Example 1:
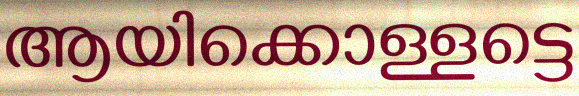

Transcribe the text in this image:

ആയിക്കൊള്ളട്ടെ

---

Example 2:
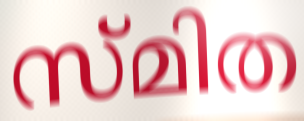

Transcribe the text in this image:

സ്മിത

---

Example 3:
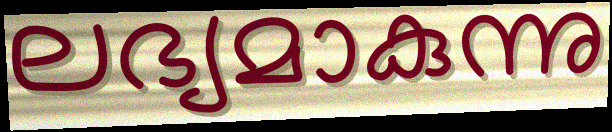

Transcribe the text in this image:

ലഭ്യമാകുന്നു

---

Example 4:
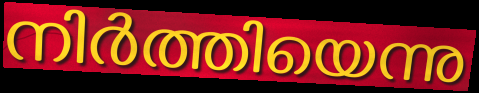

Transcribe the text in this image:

നിർത്തിയെന്നു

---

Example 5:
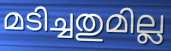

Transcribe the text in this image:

മടിച്ചതുമില്ല